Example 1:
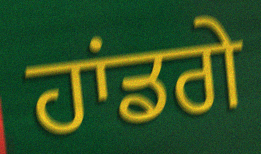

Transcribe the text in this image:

ਹਾਂਡਗੇ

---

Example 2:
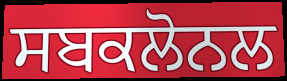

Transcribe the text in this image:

ਸਬਕਲੋਨਲ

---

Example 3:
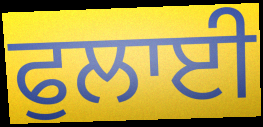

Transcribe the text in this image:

ਫੁਲਾਈ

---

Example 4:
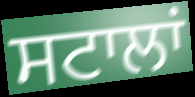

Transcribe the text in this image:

ਸਟਾਲਾਂ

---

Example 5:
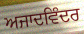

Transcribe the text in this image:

ਅਜਾਦਵਿੰਦਰ